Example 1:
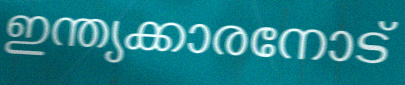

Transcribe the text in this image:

ഇന്ത്യക്കാരനോട്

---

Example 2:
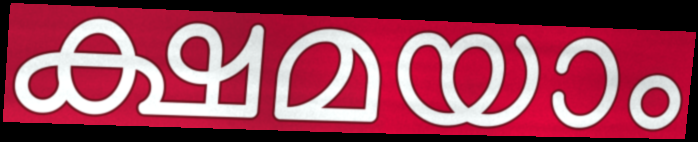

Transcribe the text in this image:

ക്ഷമയാം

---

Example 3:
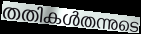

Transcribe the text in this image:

തതികൾതന്നുടെ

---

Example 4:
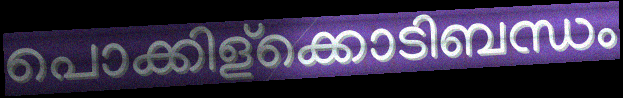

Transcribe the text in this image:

പൊക്കിള്ക്കൊടിബന്ധം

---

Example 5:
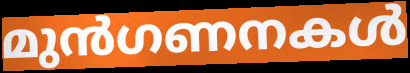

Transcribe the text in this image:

മുൻഗണനകൾ